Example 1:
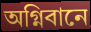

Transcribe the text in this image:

অগ্নিবানে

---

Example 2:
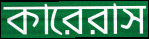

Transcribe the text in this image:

কারেরাস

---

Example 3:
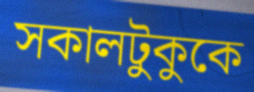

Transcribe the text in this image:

সকালটুকুকে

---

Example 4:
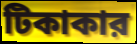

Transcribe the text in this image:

টিকাকার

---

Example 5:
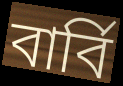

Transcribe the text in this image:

বার্বি